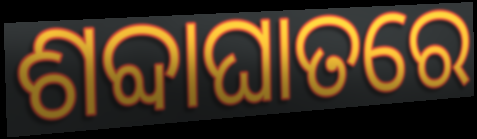
ଶବ୍ଦାଘାତରେ